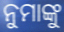
ନୁମାଙ୍କୁ